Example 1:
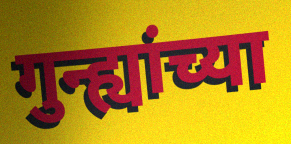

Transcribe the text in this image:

गुन्ह्यांच्या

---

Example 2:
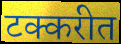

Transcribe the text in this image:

टक्करीत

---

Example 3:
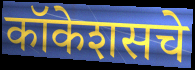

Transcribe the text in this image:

कॉकेशसचे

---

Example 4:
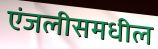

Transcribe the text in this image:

एंजलीसमधील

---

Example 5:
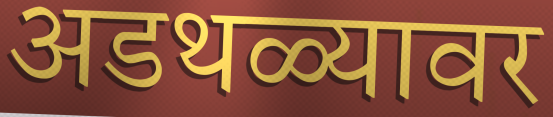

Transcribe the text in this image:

अडथळ्यावर